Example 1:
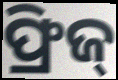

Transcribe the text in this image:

ଫ୍ରିଜ୍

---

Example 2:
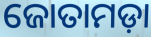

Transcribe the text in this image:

ଜୋତାମଡ଼ା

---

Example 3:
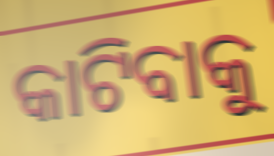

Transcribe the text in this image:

କାଟିବାକୁ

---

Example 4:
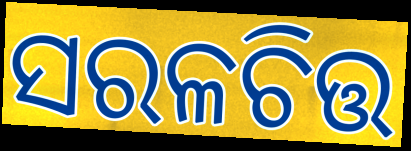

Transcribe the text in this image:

ସରଳଚିତ୍ତ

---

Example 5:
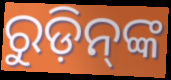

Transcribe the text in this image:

ରୁଡ଼ିନ୍‌ଙ୍କ